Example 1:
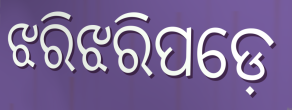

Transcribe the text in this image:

ଝରିଝରିପଡ଼େ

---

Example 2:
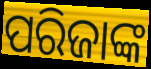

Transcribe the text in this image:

ପରିଜାଙ୍କ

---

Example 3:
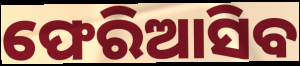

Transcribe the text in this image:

ଫେରିଆସିବ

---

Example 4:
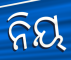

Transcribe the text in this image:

ନିୟ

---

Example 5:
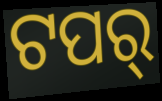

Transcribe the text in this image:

ଟପର୍